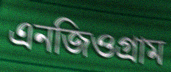
এনজিওগ্রাম